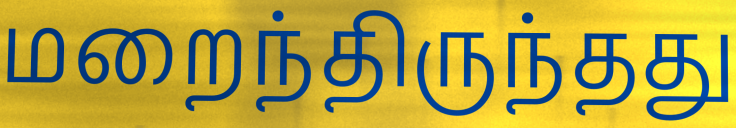
மறைந்திருந்தது